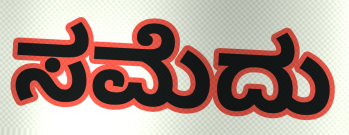
ಸಮೆದು